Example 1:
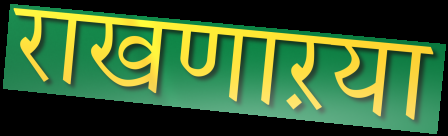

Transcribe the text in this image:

राखणाऱया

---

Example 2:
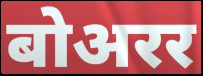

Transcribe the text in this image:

बोअरर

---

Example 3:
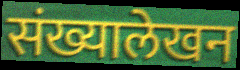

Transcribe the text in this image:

संख्यालेखन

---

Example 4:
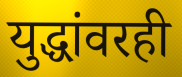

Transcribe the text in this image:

युद्धांवरही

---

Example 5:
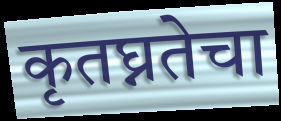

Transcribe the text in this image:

कृतघ्नतेचा